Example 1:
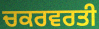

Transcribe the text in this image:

ਚਕਰਵਰਤੀ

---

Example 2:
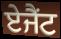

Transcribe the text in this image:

ਏਜੈਂਟ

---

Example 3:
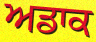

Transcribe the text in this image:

ਅਡਾਕ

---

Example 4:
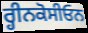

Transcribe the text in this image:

ਰ੍ਹੀਨਕੋਸੀਓਨ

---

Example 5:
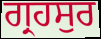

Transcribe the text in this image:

ਗ੍ਰਹਸੁਰ